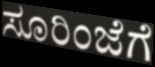
ಸೂರಿಂಜೆಗೆ